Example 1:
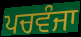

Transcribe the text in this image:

ਪਚਵੰਜਾ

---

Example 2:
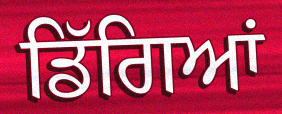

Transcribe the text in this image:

ਡਿੱਗਿਆਂ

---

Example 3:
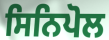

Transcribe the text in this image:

ਸਿਨਿਪੋਲ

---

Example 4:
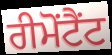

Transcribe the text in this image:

ਰੀਮੋਂਟੈਂਟ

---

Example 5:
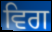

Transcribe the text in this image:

ਵਿਗ